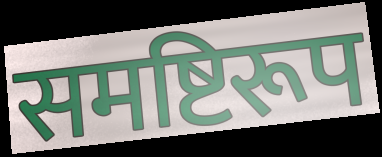
समष्टिरूप